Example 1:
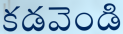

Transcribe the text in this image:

కడవెండి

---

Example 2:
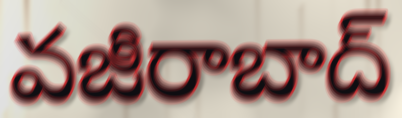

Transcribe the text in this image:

వజీరాబాద్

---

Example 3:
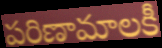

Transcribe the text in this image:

పరిణామాలకీ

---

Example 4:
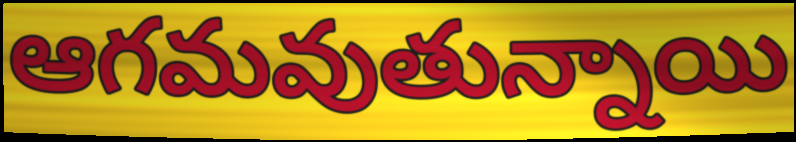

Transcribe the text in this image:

ఆగమవుతున్నాయి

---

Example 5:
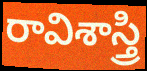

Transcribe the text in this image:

రావిశాస్త్రి